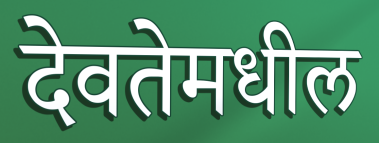
देवतेमधील